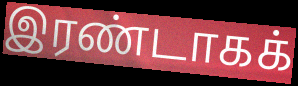
இரண்டாகக்